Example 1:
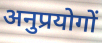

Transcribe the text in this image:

अनुप्रयोगों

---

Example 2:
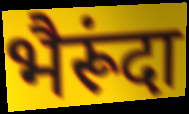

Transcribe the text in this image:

भैरूंदा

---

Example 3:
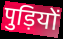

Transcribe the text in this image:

पुड़ियों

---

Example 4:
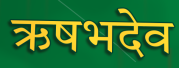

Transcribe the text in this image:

ऋषभदेव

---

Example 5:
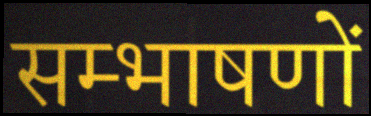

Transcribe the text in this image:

सम्भाषणों